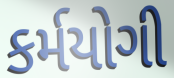
કર્મયોગી